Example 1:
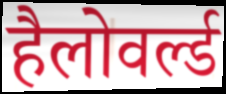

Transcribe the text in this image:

हैलोवर्ल्ड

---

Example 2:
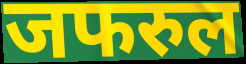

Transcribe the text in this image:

जफरुल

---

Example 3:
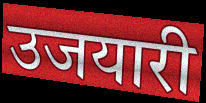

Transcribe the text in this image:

उजयारी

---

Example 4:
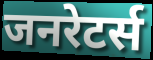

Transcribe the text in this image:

जनरेटर्स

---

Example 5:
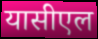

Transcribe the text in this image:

यासीएल